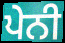
ਪੇਨੀ